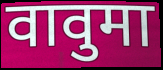
वावुमा